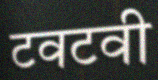
टवटवी